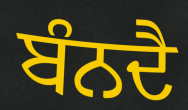
ਬੰਨਦੈ